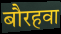
बौरहवा